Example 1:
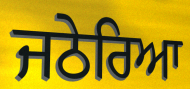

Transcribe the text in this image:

ਜਠੇਰਿਆ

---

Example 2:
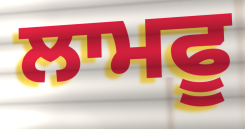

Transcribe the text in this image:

ਲਾਮਫੂ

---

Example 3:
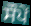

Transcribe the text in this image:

ਸੌਪੇਂ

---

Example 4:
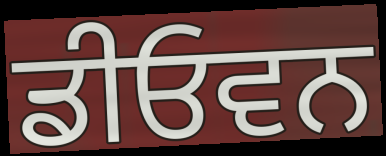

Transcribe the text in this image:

ਡੀਓਵਨ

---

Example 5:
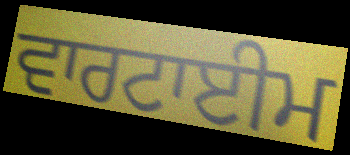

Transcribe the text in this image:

ਵਾਰਟਾਈਮ